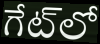
గేట్‌లో